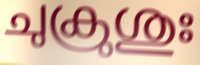
ചുക്രുശുഃ